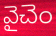
వైచెం